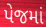
પેજમાં